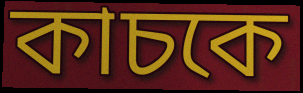
কাচকে